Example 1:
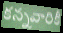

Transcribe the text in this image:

కన్నవారికీ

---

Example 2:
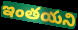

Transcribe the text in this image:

ఇంతయని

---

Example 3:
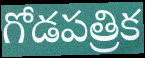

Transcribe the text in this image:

గోడపత్రిక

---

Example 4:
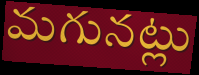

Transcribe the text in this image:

మగునట్లు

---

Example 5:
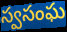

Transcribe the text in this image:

స్వసంఘ